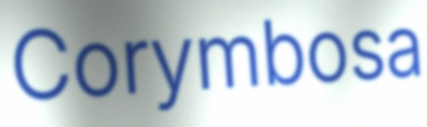
Corymbosa